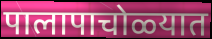
पालापाचोळ्यात